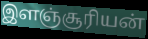
இளஞ்சூரியன்